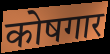
कोषगार